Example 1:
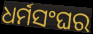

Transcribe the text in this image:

ଧର୍ମସଂଘର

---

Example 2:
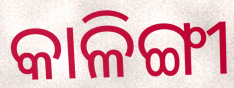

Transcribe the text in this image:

କାଳିଙ୍ଗୀ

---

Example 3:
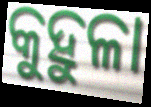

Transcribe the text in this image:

କୁହୁଳା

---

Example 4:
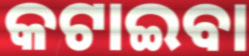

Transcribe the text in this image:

କଟାଇବା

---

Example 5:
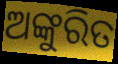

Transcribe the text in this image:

ଅଙ୍କୁରିତ